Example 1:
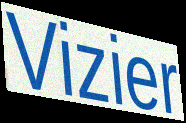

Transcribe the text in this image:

Vizier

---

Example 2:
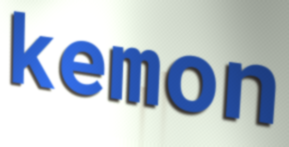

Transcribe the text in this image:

kemon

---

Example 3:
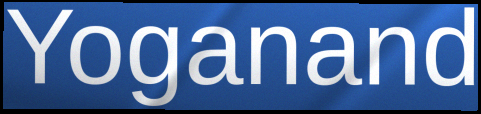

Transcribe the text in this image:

Yoganand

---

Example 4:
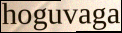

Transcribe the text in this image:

hoguvaga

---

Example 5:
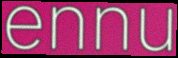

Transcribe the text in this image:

ennu